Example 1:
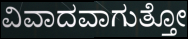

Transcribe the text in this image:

ವಿವಾದವಾಗುತ್ತೋ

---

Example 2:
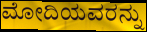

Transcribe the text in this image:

ಮೋದಿಯವರನ್ನು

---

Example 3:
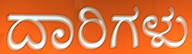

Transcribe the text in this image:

ದಾರಿಗಳು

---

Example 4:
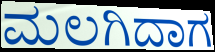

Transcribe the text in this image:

ಮಲಗಿದಾಗ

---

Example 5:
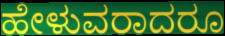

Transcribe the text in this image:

ಹೇಳುವರಾದರೂ